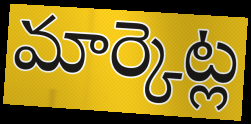
మార్కెట్ల